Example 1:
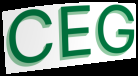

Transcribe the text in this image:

CEG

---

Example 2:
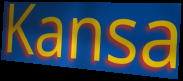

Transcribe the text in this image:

Kansa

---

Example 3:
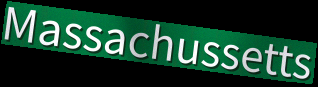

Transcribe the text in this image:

Massachussetts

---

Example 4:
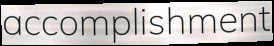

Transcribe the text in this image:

accomplishment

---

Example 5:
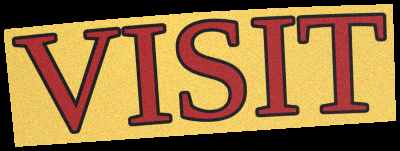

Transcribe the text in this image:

VISIT